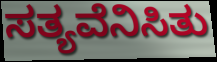
ಸತ್ಯವೆನಿಸಿತು